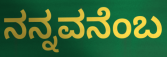
ನನ್ನವನೆಂಬ